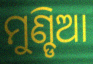
ମୁଣ୍ଡିଆ